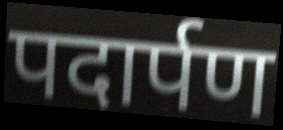
पदार्पण